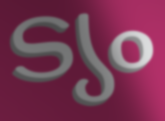
ട്യം